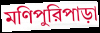
মণিপুরিপাড়া